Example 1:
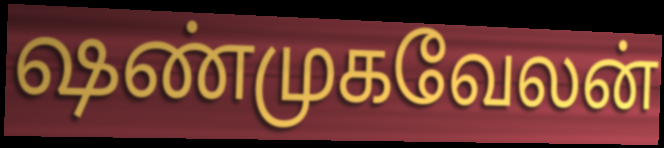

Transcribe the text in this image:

ஷண்முகவேலன்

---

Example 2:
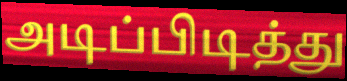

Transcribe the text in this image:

அடிப்பிடித்து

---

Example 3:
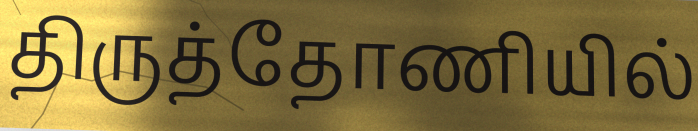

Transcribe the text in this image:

திருத்தோணியில்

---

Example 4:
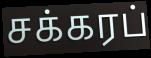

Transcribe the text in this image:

சக்கரப்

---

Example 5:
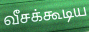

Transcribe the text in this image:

வீசக்கூடிய